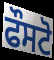
ਫੌਸਟੋ